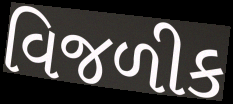
વિજળીક